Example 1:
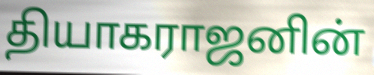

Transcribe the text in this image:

தியாகராஜனின்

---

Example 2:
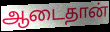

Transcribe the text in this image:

ஆடைதான்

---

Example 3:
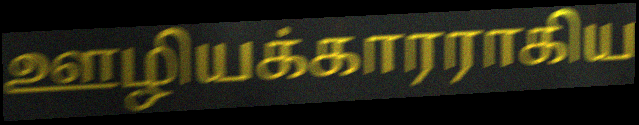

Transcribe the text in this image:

ஊழியக்காரராகிய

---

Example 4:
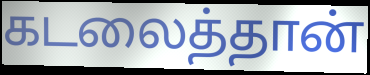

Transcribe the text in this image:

கடலைத்தான்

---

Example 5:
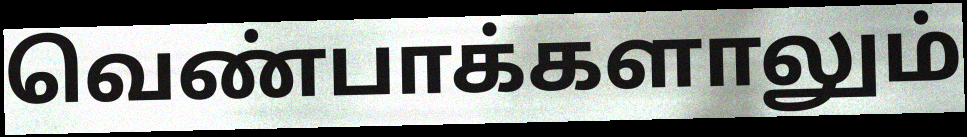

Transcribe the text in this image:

வெண்பாக்களாலும்